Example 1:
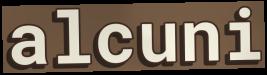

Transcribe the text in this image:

alcuni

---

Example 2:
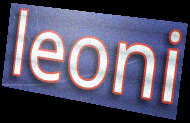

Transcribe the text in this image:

leoni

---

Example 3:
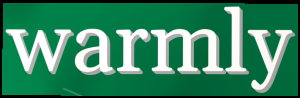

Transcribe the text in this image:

warmly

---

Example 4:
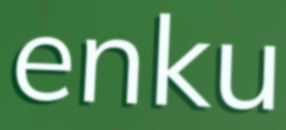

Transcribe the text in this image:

enku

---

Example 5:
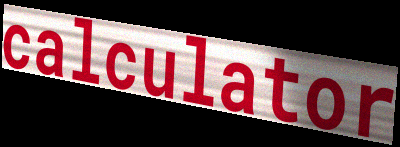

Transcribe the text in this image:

calculator